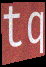
tq